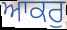
ਆਕਰੁ